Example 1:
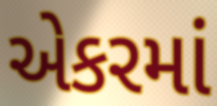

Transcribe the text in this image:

એકરમાં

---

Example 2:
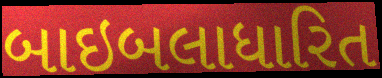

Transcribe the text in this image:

બાઇબલાધારિત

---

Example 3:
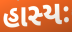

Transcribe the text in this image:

હાસ્યઃ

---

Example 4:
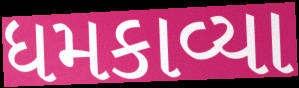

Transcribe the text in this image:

ધમકાવ્યા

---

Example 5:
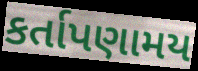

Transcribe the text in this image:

કર્તાપણામય